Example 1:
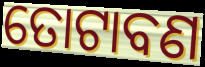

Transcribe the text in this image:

ତୋଟାବଣ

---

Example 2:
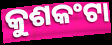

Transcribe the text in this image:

କୁଶକଂଟା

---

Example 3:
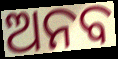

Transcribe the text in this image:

ଅନବ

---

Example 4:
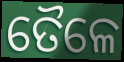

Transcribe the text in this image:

ତୈଳେ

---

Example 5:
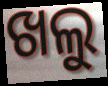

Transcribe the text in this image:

ଖଲୁ